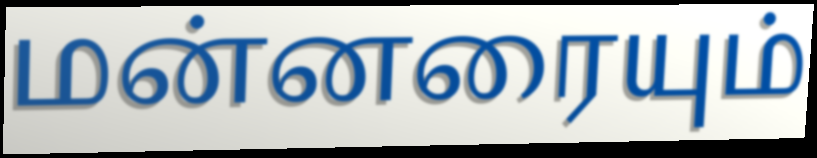
மன்னரையும்